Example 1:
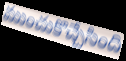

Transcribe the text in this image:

ముంచుకొచ్చేసింది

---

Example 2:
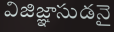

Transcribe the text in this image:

విజిజ్ఞాసుడనై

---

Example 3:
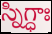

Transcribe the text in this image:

స్నిగ్ధాః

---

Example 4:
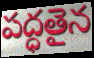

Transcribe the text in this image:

పద్ధతైన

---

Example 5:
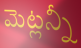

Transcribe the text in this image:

మెట్లన్నీ